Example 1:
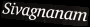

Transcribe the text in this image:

Sivagnanam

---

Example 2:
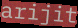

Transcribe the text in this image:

arijit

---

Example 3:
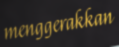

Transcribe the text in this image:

menggerakkan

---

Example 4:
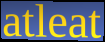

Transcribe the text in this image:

atleat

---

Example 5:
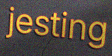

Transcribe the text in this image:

jesting